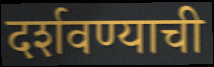
दर्शवण्याची